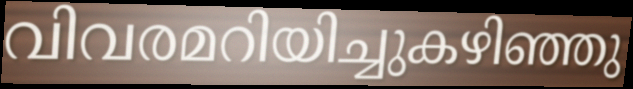
വിവരമറിയിച്ചുകഴിഞ്ഞു